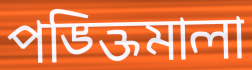
পঙ্ক্তিমালা